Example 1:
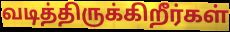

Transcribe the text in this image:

வடித்திருக்கிறீர்கள்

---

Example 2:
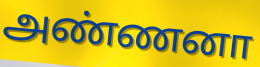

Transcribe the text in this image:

அண்ணனா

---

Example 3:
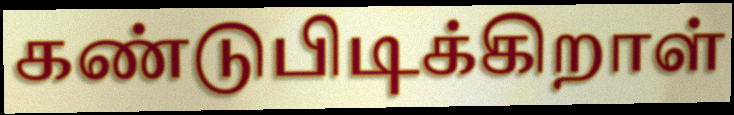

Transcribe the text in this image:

கண்டுபிடிக்கிறாள்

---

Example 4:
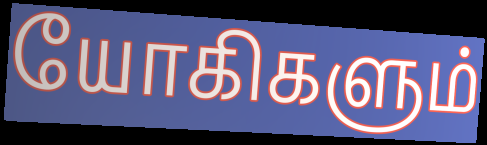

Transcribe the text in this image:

யோகிகளும்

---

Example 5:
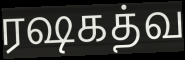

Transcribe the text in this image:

ரஷகத்வ